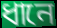
ধানে